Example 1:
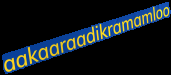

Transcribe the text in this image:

aakaaraadikramamloo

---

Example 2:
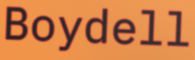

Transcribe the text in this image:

Boydell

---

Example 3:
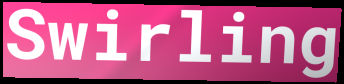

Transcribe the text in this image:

Swirling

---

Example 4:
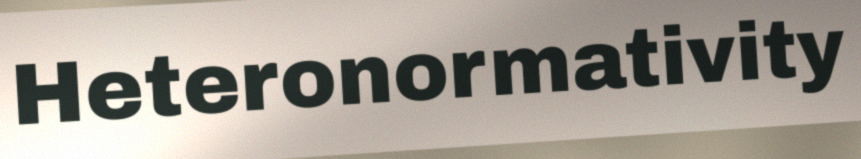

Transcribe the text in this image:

Heteronormativity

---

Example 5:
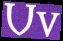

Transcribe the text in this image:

Uv